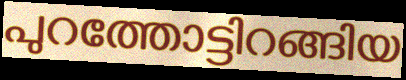
പുറത്തോട്ടിറങ്ങിയ